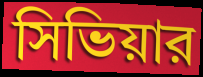
সিভিয়ার